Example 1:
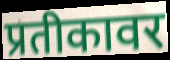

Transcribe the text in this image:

प्रतीकावर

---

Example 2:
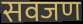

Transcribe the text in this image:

सवजण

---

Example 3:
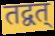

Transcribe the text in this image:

तद्वत्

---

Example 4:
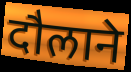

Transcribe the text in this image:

दौलाने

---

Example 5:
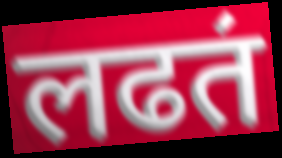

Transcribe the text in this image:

लढतं